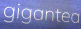
gigantea